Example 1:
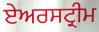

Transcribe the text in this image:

ਏਅਰਸਟ੍ਰੀਮ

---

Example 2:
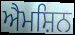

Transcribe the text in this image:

ਐਮਸ਼ਿਨ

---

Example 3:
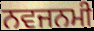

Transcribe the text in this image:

ਨਵਜਨਮੀ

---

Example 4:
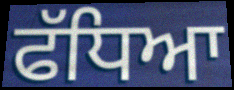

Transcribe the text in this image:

ਫੱਧਿਆ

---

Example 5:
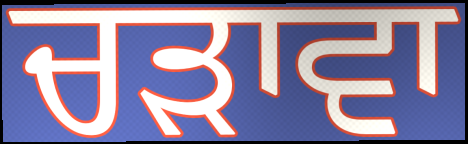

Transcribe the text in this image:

ਚੜਾਵਾ